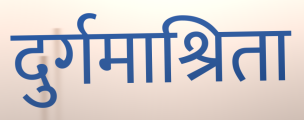
दुर्गमाश्रिता